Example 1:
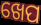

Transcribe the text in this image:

ଖେପ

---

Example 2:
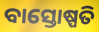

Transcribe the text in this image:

ବାସ୍ତୋଷ୍ପତି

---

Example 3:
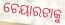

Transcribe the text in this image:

ଚେୟାରଟାକୁ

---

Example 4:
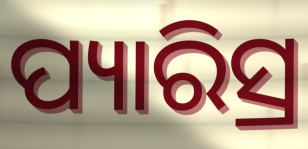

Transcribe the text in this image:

ପ୍ୟାରିସ୍ର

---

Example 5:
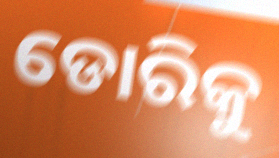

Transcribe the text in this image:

ଡୋରିକୁ